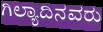
ಗಿಲ್ಯಾದಿನವರು